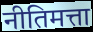
नीतिमत्ता